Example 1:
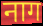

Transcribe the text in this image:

नाग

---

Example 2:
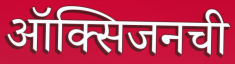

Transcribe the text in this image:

ऑक्सिजनची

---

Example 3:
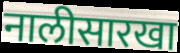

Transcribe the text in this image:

नालीसारखा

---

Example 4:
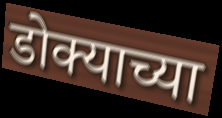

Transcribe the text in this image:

डोक्याच्या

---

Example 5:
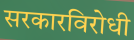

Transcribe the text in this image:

सरकारविरोधी